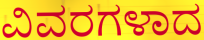
ವಿವರಗಳಾದ